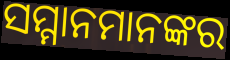
ସମ୍ମାନମାନଙ୍କର